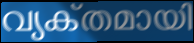
വ്യക്‌തമായി